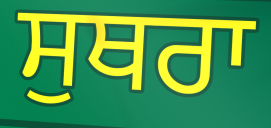
ਸੁਥਰਾ